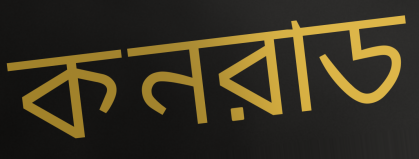
কনরাড